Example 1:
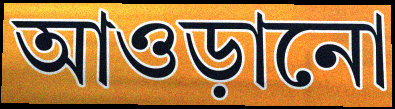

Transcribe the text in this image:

আওড়ানো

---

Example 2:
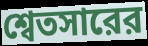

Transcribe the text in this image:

শ্বেতসারের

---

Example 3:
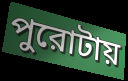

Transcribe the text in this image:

পুরোটায়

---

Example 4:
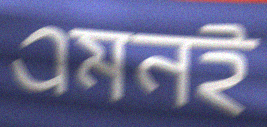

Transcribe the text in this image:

এমনই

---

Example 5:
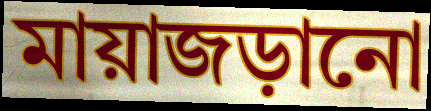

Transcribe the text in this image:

মায়াজড়ানো